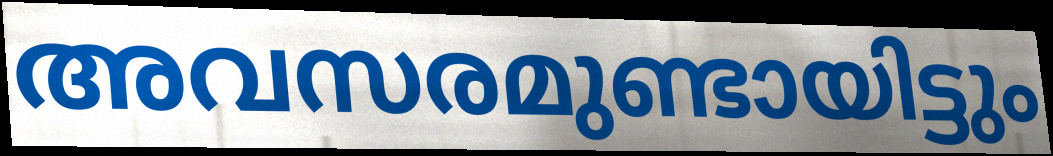
അവസരമുണ്ടായിട്ടും